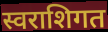
स्वराशिगत